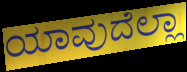
ಯಾವುದೆಲ್ಲಾ